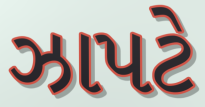
ઝાપટે